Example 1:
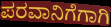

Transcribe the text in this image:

ಪರವಾನಿಗೆಗಾಗಿ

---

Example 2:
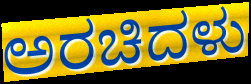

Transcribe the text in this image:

ಅರಚಿದಳು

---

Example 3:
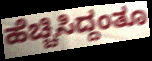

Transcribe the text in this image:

ಹೆಚ್ಚಿಸಿದ್ದಂತೂ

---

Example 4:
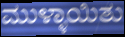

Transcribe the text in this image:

ಮುಳ್ಳಾಯಿತು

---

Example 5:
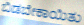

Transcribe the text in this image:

ಬಿಡಬೇಕಾಯಿತು